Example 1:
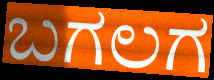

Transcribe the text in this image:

ಬಗಲಗ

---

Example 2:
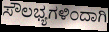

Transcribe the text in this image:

ಸೌಲಭ್ಯಗಳಿಂದಾಗಿ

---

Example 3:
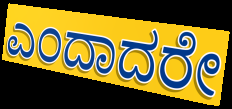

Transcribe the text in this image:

ಎಂದಾದರೇ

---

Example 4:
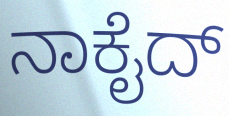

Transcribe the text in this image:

ನಾಕೈದ್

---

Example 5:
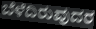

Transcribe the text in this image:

ಬೆಳೆದಿರುವುದರ